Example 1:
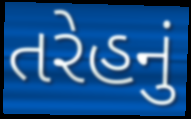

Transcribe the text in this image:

તરેહનું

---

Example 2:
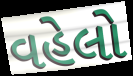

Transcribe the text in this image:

વહેલો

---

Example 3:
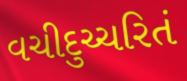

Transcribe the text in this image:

વચીદુચ્ચરિતં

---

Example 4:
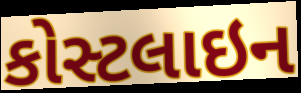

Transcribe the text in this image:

કોસ્ટલાઇન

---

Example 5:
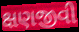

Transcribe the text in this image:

ક્ષણજીવી